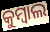
କୁମ୍ବାଲ